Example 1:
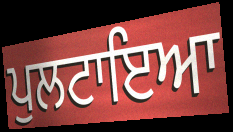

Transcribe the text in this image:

ਪੁਲਟਾਇਆ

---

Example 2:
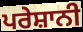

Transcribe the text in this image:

ਪਰੇਸ਼ਾਨੀ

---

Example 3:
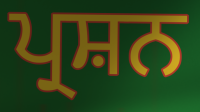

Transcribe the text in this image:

ਪ੍ਰਸ਼ਨ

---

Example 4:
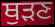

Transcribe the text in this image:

ਥੁੜਣ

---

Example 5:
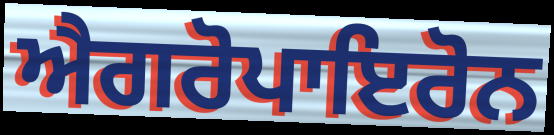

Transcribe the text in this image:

ਐਗਰੋਪਾਇਰੋਨ